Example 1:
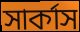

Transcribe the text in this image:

সার্কাস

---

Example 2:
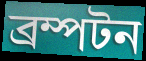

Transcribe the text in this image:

ব্রম্পটন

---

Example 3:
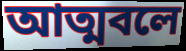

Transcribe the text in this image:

আত্মবলে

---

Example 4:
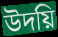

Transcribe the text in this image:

উদয়ি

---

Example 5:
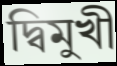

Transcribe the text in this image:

দ্বিমুখী